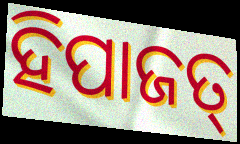
ହିପାଜତ୍